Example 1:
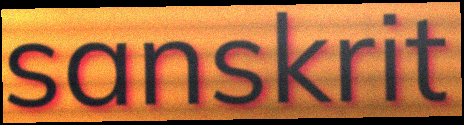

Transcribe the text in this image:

sanskrit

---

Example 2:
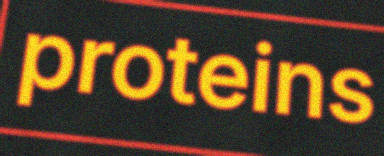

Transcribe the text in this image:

proteins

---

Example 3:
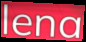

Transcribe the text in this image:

lena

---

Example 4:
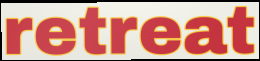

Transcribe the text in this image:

retreat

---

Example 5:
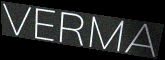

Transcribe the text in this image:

VERMA